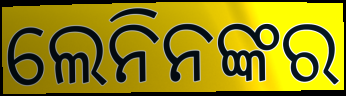
ଲେନିନଙ୍କର